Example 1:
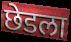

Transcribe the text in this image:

छेडला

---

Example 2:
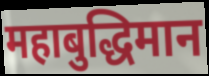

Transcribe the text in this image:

महाबुद्धिमान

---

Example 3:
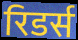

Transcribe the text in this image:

रिडर्स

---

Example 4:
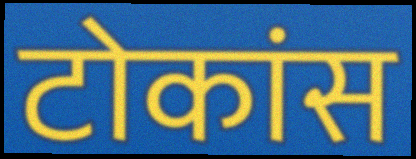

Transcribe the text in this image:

टोकांस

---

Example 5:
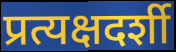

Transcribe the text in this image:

प्रत्यक्षदर्शी